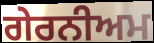
ਗੇਰਨੀਅਮ